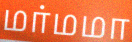
மர்மமா